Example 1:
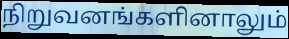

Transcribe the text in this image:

நிறுவனங்களினாலும்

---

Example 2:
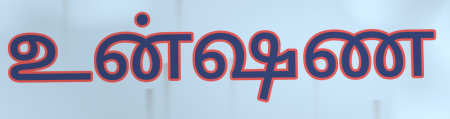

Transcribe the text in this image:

உன்ஷண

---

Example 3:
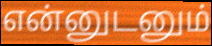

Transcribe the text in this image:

என்னுடனும்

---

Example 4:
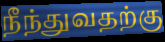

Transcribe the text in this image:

நீந்துவதற்கு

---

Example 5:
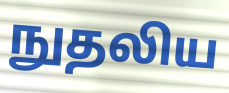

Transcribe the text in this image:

நுதலிய